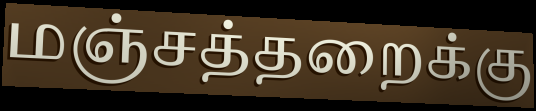
மஞ்சத்தறைக்கு